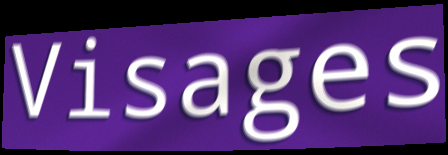
Visages